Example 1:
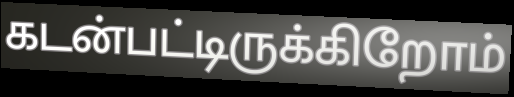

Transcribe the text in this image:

கடன்பட்டிருக்கிறோம்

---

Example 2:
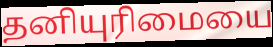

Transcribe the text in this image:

தனியுரிமையை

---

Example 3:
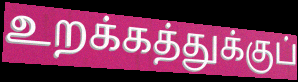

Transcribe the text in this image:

உறக்கத்துக்குப்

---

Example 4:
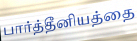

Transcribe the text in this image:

பார்த்தீனியத்தை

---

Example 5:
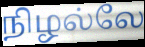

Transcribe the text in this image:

நிழல்லே